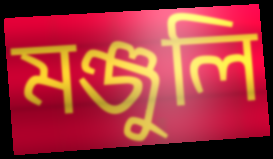
মঞ্জুলি